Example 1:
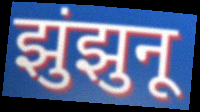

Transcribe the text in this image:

झुंझुनू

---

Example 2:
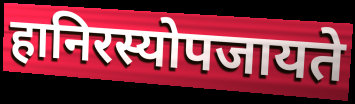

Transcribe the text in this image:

हानिरस्योपजायते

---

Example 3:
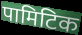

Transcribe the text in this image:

पामिटिक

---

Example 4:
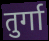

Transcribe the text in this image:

तुर्गा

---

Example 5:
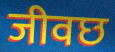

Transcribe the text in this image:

जीवछ